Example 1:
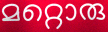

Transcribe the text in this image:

മറ്റൊരു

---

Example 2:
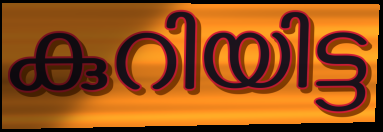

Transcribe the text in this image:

കുറിയിട്ട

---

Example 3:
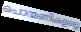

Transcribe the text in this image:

പൊന്മണികളല്ലെ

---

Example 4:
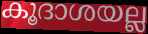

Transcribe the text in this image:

കൂദാശയല്ല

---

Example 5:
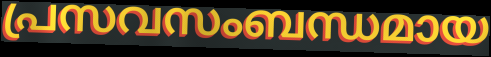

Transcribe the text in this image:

പ്രസവസംബന്ധമായ